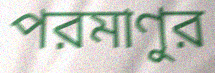
পরমাণুর